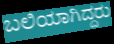
ಬಲಿಯಾಗಿದ್ದರು